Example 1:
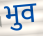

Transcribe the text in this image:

भुव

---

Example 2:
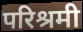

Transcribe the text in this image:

परिश्रमी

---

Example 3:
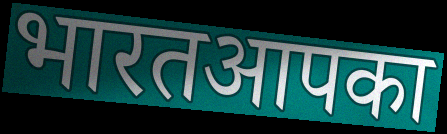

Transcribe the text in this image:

भारतआपका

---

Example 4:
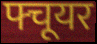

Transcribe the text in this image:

फ्चूयर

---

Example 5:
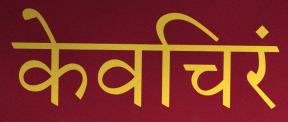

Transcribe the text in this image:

केवचिरं